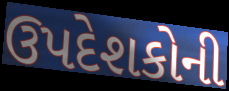
ઉપદેશકોની